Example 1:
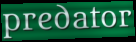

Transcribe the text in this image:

predator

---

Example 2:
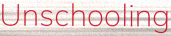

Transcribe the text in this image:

Unschooling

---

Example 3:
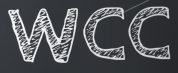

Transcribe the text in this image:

WCC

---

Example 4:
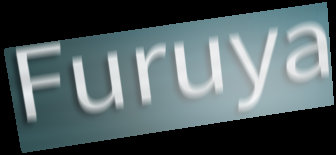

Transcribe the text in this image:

Furuya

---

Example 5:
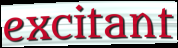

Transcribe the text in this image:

excitant